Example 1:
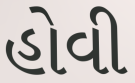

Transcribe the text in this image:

હોવી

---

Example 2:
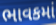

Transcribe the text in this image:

ભાવકમાં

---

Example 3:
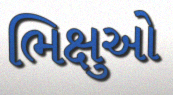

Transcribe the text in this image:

ભિક્ષુઓ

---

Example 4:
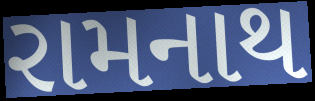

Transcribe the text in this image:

રામનાથ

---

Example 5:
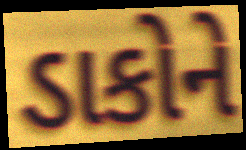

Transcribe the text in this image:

ડાકોને